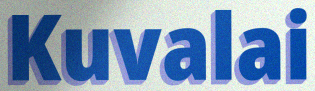
Kuvalai